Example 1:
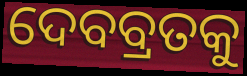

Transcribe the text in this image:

ଦେବବ୍ରତକୁ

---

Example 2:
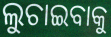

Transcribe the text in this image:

ଲୁଚାଇବାକୁ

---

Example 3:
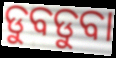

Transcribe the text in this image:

ଡୁବଡୁବା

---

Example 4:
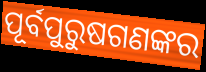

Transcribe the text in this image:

ପୂର୍ବପୁରୁଷଗଣଙ୍କର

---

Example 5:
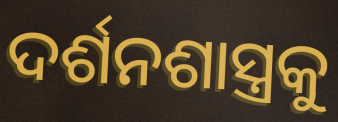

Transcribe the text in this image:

ଦର୍ଶନଶାସ୍ତ୍ରକୁ